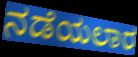
ನಡೆಯಲಾರ